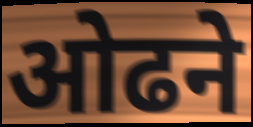
ओढने